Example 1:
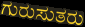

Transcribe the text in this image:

ಗುರುಸುತರು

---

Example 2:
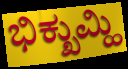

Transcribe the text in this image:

ಭಿಕ್ಖುಮ್ಹಿ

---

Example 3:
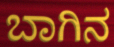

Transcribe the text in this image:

ಬಾಗಿನ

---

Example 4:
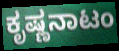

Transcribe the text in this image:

ಕೃಷ್ಣನಾಟಂ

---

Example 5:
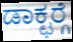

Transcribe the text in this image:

ಡಾಕ್ಟರ್‍ಗೆ